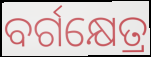
ବର୍ଗକ୍ଷେତ୍ର